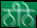
ਨੀਨੇ